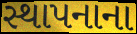
સ્થાપનાના